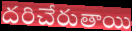
దరిచేరుతాయి